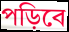
পড়িবে